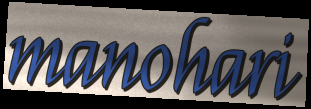
manohari